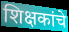
शिक्षकांचे